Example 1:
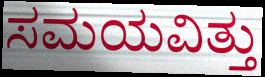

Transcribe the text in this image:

ಸಮಯವಿತ್ತು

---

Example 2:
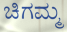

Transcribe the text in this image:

ಚಿಗಮ್ಮ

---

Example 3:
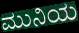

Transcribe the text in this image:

ಮುನಿಯ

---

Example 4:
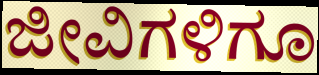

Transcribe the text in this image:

ಜೀವಿಗಳಿಗೂ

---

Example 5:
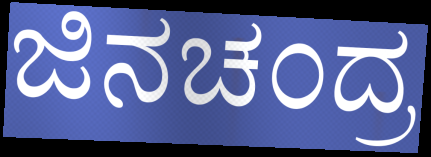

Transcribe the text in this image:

ಜಿನಚಂದ್ರ